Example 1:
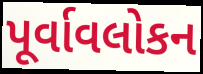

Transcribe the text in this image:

પૂર્વાવલોકન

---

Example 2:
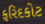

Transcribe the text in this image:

ફરિદકોટ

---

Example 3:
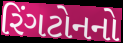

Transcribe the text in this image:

રિંગટોનનો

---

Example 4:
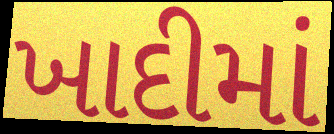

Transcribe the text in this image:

ખાદીમાં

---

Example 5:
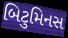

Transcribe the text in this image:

બિટુમિનસ